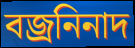
বজ্রনিনাদ